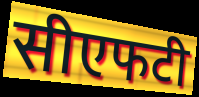
सीएफटी